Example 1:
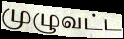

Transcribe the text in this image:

முழுவட்ட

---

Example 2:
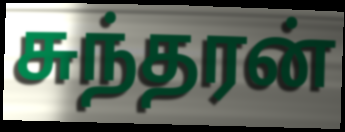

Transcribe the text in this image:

சுந்தரன்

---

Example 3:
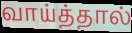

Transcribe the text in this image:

வாய்த்தால்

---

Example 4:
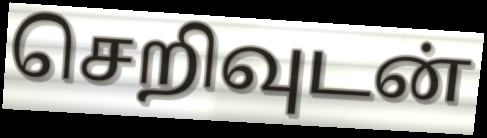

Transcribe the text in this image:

செறிவுடன்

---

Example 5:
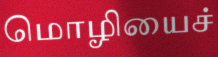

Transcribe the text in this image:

மொழியைச்